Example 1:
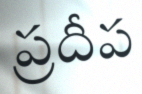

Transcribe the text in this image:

ప్రదీప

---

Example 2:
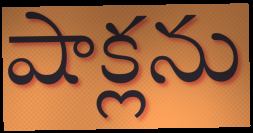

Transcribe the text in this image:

షాక్లను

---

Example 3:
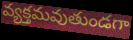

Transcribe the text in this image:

వ్యక్తమవుతుండగా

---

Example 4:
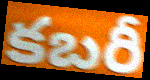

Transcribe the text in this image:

కబరీ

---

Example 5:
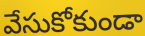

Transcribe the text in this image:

వేసుకోకుండా